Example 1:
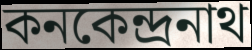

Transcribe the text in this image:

কনকেন্দ্রনাথ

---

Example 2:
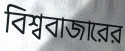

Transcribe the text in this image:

বিশ্ববাজারের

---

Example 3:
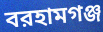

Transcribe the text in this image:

বরহামগঞ্জ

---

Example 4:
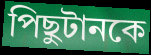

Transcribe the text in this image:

পিছুটানকে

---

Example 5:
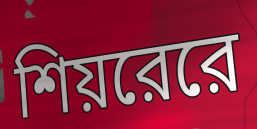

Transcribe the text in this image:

শিয়রেরে